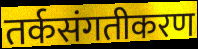
तर्कसंगतीकरण